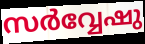
സർവ്വേഷു